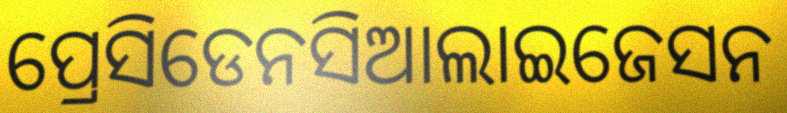
ପ୍ରେସିଡେନସିଆଲାଇଜେସନ